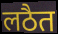
लठैत